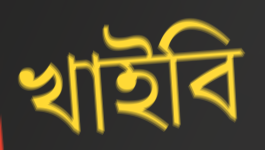
খাইবি